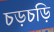
চড়চড়ি